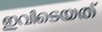
ഇവിടെയത്